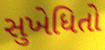
સુખેધિતો